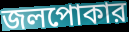
জলপোকার